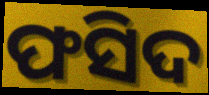
ଫସିଦ